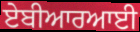
ਏਬੀਆਰਆਈ